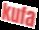
kufa